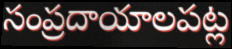
సంప్రదాయాలపట్ల